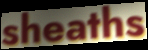
sheaths